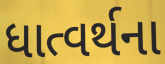
ધાત્વર્થના